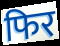
फिर